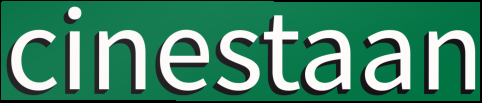
cinestaan